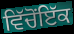
ਵਿੱਚੋਂਇੱਕ